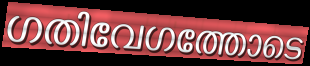
ഗതിവേഗത്തോടെ